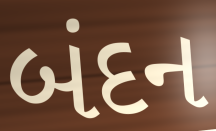
બંદન